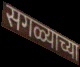
सगळ्याच्या